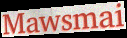
Mawsmai